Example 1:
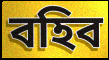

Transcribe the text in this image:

বহিব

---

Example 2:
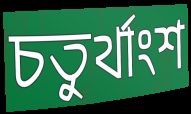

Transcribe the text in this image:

চতুর্থাংশ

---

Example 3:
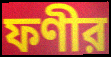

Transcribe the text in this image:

ফণীর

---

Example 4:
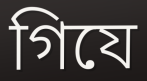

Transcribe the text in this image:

গিযে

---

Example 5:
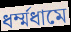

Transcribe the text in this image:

ধর্ম্মধামে